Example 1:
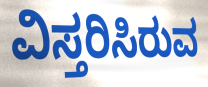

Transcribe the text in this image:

ವಿಸ್ತರಿಸಿರುವ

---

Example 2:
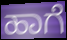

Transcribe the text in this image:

ಹಾಗೆ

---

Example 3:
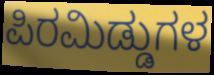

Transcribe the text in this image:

ಪಿರಮಿಡ್ಡುಗಳ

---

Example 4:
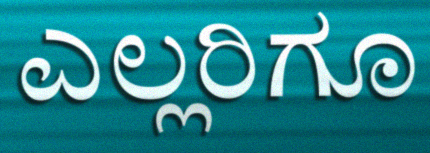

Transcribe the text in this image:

ಎಲ್ಲರಿಗೂ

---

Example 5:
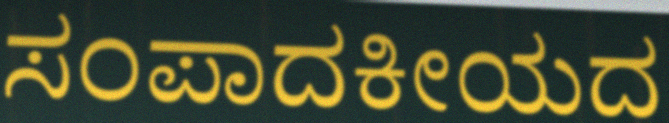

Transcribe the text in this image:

ಸಂಪಾದಕೀಯದ